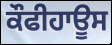
ਕੌਫੀਹਾਊਸ